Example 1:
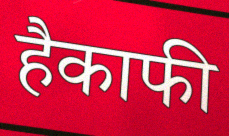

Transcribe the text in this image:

हैकाफी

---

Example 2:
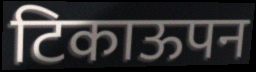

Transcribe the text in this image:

टिकाऊपन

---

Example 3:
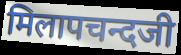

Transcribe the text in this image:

मिलापचन्दजी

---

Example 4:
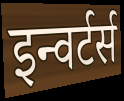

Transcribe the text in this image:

इन्वर्टर्स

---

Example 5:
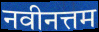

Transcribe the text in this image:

नवीनत्तम